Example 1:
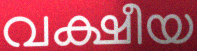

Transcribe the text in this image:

വക്ഷീയ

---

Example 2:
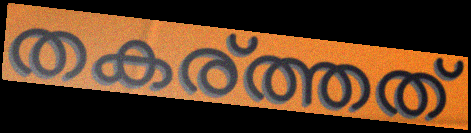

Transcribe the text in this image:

തകര്ത്തത്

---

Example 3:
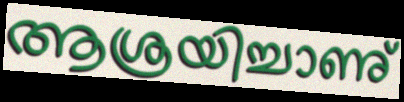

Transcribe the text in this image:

ആശ്രയിച്ചാണു്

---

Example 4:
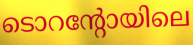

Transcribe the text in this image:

ടൊറന്റോയിലെ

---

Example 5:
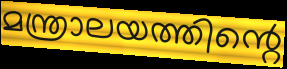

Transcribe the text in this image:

മന്ത്രാലയത്തിന്റെ